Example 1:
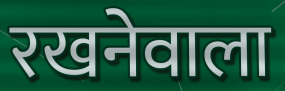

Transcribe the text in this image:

रखनेवाला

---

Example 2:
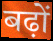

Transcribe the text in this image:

बढ़ों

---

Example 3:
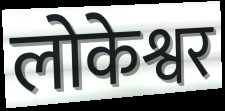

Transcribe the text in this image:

लोकेश्वर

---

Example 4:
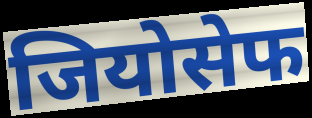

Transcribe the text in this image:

जियोसेफ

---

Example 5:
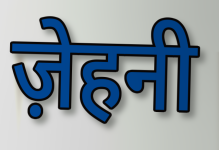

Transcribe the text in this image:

ज़ेहनी